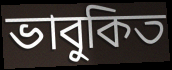
ভাবুকিত